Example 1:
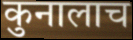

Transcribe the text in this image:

कुनालाच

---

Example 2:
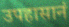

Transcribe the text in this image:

उपहासानं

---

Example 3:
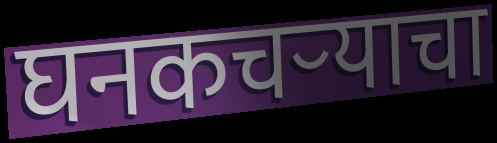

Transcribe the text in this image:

घनकचऱ्याचा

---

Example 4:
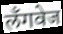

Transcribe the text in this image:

लॅंगवेज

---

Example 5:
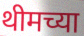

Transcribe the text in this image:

थीमच्या